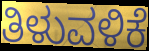
ತಿಳುವಳಿಕೆ